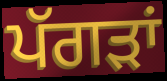
ਪੱਗੜਾਂ